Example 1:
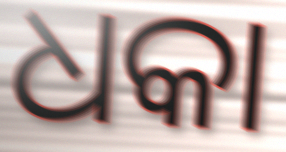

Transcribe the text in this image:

ଧକା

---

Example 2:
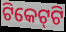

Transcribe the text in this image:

ଟିକେଟ୍‌ଟି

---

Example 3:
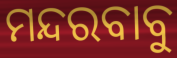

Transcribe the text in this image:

ମନ୍ଦରବାବୁ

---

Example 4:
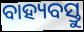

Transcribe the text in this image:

ବାହ୍ୟବସ୍ତୁ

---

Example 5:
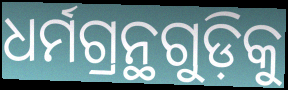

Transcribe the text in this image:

ଧର୍ମଗ୍ରନ୍ଥଗୁଡ଼ିକୁ